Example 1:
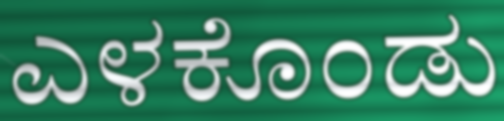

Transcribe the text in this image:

ಎಳಕೊಂಡು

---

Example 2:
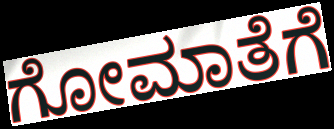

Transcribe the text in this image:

ಗೋಮಾತೆಗೆ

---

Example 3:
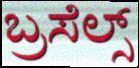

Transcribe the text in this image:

ಬ್ರಸೆಲ್ಸ್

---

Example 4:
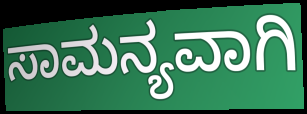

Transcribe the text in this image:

ಸಾಮನ್ಯವಾಗಿ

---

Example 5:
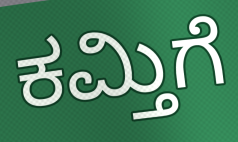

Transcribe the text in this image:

ಕಮ್ತಿಗೆ